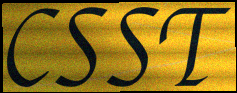
CSST